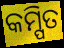
କମ୍ପିତ